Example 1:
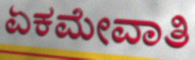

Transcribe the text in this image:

ಏಕಮೇವಾತಿ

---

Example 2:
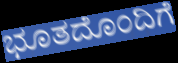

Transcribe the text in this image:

ಭೂತದೊಂದಿಗೆ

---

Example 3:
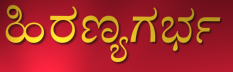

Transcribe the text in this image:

ಹಿರಣ್ಯಗರ್ಭ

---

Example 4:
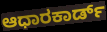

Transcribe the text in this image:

ಆಧಾರಕಾರ್ಡ್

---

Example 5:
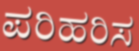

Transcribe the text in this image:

ಪರಿಹರಿಸ